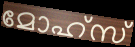
മോഹ്സ്